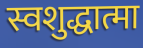
स्वशुद्धात्मा